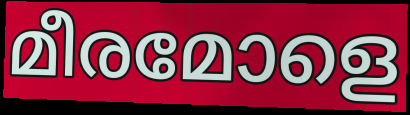
മീരമോളെ